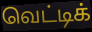
வெட்டிக்